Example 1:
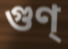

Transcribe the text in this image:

গুণ্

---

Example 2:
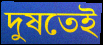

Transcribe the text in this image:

দুষতেই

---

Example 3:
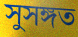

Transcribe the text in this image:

সুসঙ্গত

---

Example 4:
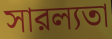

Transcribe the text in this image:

সারল্যতা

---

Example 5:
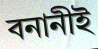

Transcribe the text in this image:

বনানীই